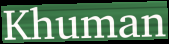
Khuman